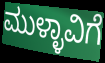
ಮುಳ್ಳಾವಿಗೆ